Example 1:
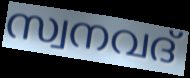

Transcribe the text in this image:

സ്വനവദ്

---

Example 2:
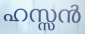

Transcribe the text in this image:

ഹസ്സൻ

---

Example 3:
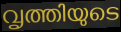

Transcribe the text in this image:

വൃത്തിയുടെ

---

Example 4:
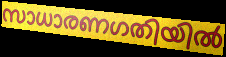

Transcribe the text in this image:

സാധാരണഗതിയിൽ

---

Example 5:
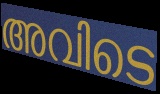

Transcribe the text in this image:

അവിടെ